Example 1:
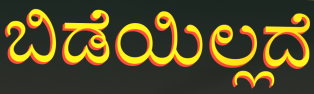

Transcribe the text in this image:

ಬಿಡೆಯಿಲ್ಲದೆ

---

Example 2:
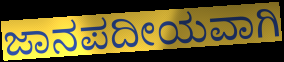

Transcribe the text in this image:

ಜಾನಪದೀಯವಾಗಿ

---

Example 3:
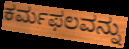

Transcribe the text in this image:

ಕರ್ಮಫಲವನ್ನು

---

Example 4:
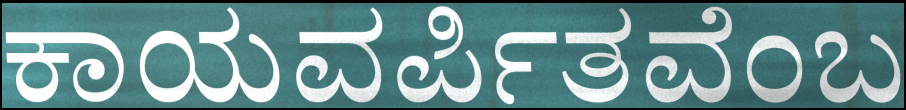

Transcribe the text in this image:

ಕಾಯವರ್ಪಿತವೆಂಬ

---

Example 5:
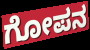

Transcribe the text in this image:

ಗೋಪನ